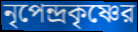
নৃপেন্দ্রকৃষ্ণের